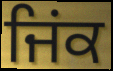
ਜਿਂਕ